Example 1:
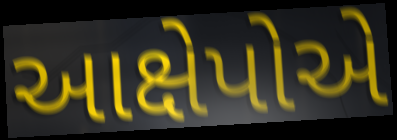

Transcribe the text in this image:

આક્ષેપોએ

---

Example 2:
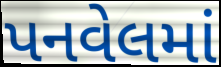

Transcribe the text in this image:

પનવેલમાં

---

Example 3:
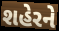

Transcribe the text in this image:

શહેરને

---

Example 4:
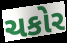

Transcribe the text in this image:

ચકોર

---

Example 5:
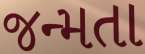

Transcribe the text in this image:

જન્મતા